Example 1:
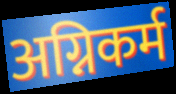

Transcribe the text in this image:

अग्निकर्म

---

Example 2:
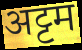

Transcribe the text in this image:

अट्टम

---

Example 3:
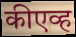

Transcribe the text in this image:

कीएव्ह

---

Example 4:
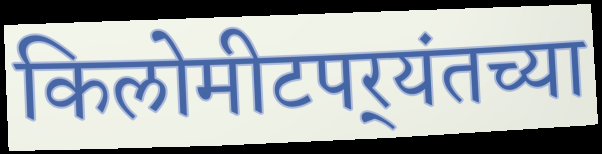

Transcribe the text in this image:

किलोमीटपर्यंतच्या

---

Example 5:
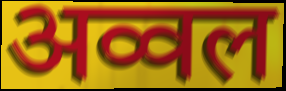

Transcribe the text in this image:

अव्वल